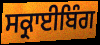
ਸਕ੍ਰਾਈਬਿੰਗ